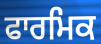
ਫਾਰਮਿਕ